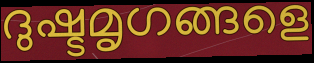
ദുഷ്ടമൃഗങ്ങളെ